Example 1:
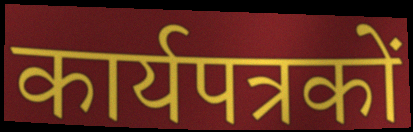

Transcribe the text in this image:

कार्यपत्रकों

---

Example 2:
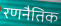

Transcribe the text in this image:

रणनैतिक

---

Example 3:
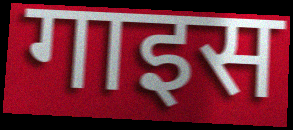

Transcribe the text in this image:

गाइस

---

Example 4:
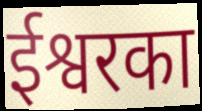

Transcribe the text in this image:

ईश्वरका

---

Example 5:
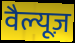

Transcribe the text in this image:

वैल्यूज़